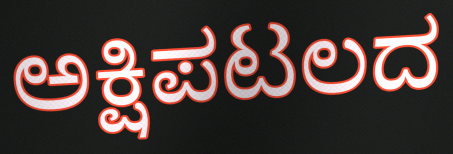
ಅಕ್ಷಿಪಟಲದ